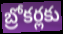
బ్రోకర్లకు